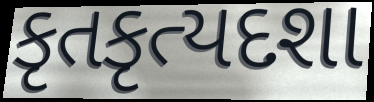
કૃતકૃત્યદશા